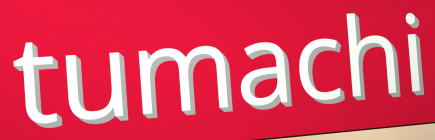
tumachi